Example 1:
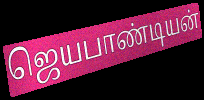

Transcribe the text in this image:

ஜெயபாண்டியன்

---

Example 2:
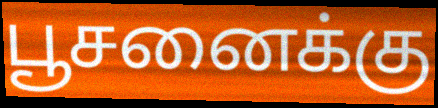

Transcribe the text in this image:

பூசனைக்கு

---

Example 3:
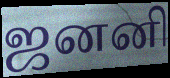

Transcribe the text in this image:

ஜனனி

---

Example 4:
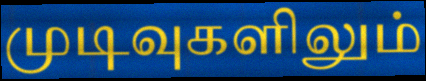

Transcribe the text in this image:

முடிவுகளிலும்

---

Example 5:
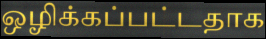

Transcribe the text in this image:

ஒழிக்கப்பட்டதாக